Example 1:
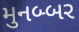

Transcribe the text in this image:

મુનબ્બર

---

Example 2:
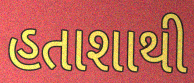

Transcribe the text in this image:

હતાશાથી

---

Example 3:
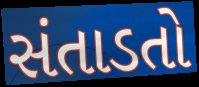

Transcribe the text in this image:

સંતાડતો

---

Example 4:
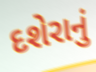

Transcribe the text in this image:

દશેરાનું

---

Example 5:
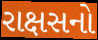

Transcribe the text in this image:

રાક્ષસનો